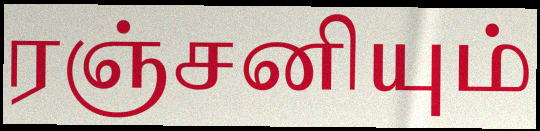
ரஞ்சனியும்